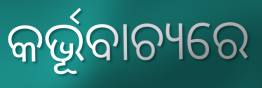
କର୍ଭୂବାଚ୍ୟରେ